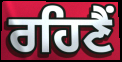
ਰਹਿਣੈਂ